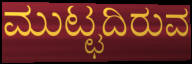
ಮುಟ್ಟದಿರುವ